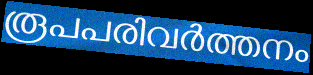
രൂപപരിവർത്തനം